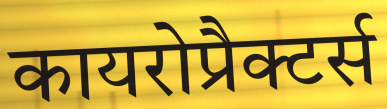
कायरोप्रैक्टर्स